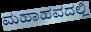
ಮಹಾಹವದಲ್ಲಿ